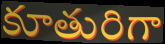
కూతురిగా